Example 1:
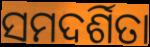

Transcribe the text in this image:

ସମଦର୍ଶିତା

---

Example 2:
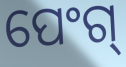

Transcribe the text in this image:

ପେଂଗ୍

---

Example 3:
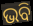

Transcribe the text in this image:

ଭବି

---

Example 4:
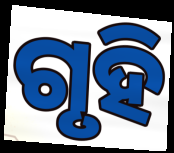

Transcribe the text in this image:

ଗୃହି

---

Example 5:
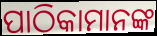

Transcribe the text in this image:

ପାଠିକାମାନଙ୍କ